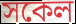
সকেল